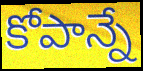
కోపాన్నే